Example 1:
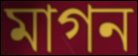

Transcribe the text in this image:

মাগন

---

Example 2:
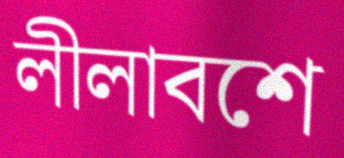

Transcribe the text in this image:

লীলাবশে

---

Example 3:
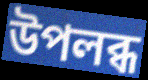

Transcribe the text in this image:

উপলব্ধ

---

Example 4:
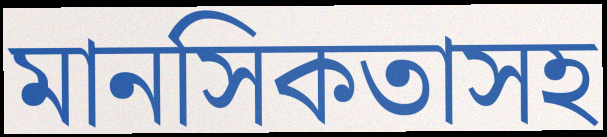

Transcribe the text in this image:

মানসিকতাসহ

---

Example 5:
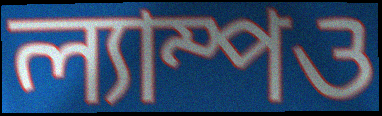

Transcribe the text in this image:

ল্যাম্পও